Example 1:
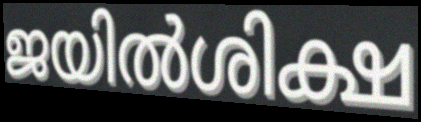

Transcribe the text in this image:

ജയിൽശിക്ഷ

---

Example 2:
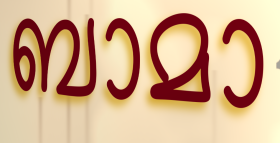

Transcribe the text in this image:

ബാമാ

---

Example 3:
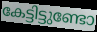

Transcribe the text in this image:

കേട്ടിട്ടുണ്ടോ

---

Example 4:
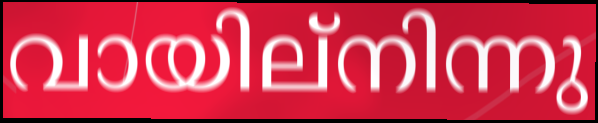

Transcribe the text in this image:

വായില്നിന്നു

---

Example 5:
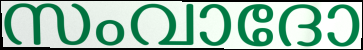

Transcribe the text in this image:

സംവാദോ